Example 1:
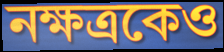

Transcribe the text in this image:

নক্ষত্রকেও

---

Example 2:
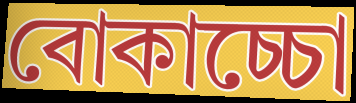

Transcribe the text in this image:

বোকাচ্চো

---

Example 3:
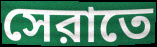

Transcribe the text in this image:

সেরাতে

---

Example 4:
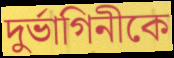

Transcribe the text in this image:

দুর্ভাগিনীকে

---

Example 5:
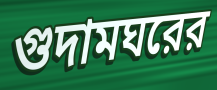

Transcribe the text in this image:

গুদামঘরের